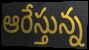
ఆరేస్తున్న